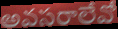
అవసరాలేవో